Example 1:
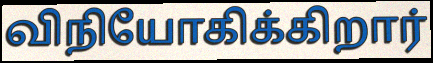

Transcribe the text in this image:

விநியோகிக்கிறார்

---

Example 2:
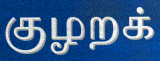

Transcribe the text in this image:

குழறக்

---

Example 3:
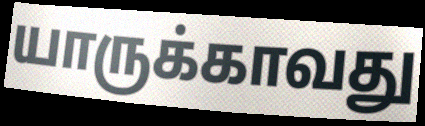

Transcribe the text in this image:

யாருக்காவது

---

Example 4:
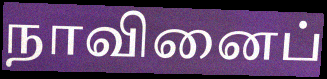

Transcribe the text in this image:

நாவினைப்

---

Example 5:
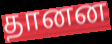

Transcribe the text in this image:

தானன